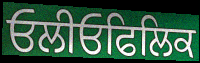
ਓਲੀਓਫਿਲਿਕ